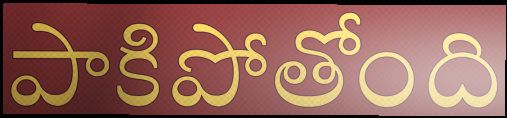
పాకిపోతోంది